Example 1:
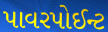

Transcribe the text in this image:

પાવરપોઈન્ટ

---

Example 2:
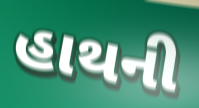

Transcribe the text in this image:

હાથની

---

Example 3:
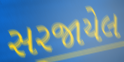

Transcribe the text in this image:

સરજાયેલ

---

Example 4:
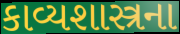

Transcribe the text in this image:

કાવ્યશાસ્ત્રના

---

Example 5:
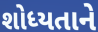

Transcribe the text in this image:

શોધ્યતાને